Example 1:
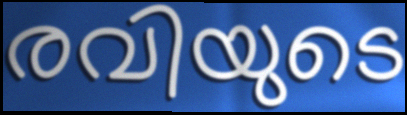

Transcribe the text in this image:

രവിയുടെ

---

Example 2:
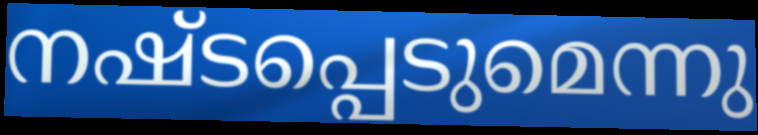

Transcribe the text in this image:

നഷ്ടപ്പെടുമെന്നു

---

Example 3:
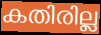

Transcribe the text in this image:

കതിരില്ല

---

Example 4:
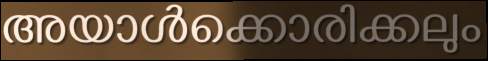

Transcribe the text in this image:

അയാൾക്കൊരിക്കലും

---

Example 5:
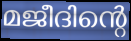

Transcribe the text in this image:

മജീദിന്റെ